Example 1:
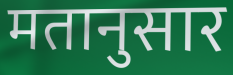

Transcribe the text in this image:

मतानुसार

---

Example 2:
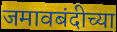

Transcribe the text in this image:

जमावबंदीच्या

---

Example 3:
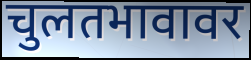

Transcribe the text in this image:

चुलतभावावर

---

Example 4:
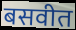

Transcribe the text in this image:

बसवीत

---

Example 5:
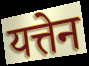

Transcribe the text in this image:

यत्तेन